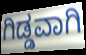
ಗಿಡ್ಡವಾಗಿ